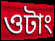
ওটাং